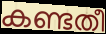
കണ്ടതീ